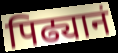
पिढ्यानं